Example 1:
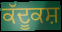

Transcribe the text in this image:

ਕੱਦੂਕਸ਼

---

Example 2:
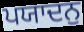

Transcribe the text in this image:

ਪਯਾਦਨੁ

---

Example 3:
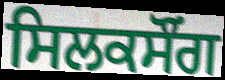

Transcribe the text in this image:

ਸਿਲਕਸੌਂਗ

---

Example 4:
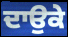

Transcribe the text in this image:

ਦਾਉਕੇ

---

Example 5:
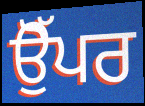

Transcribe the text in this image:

ਉੋੱਪਰ